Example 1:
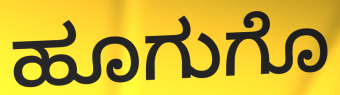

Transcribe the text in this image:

ಹೂಗುಗೊ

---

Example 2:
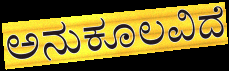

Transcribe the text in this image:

ಅನುಕೂಲವಿದೆ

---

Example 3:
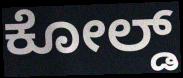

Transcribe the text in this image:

ಕೋಲ್ಡ್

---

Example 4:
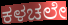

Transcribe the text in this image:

ಕಳಚಲೇ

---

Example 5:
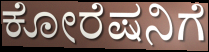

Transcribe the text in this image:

ಕೋರೆಷನಿಗೆ